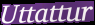
Uttattur